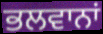
ਭਲਵਾਨਾਂ